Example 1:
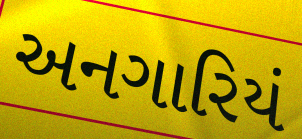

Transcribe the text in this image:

અનગારિયં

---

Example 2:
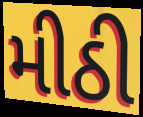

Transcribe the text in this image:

મીઠી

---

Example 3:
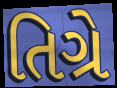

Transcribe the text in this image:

તિગ્રે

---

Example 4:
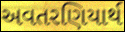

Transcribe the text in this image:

અવતરણિયાર્થ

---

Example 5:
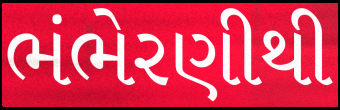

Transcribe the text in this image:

ભંભેરણીથી